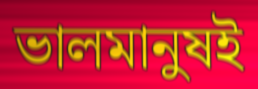
ভালমানুষই